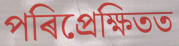
পৰিপ্ৰেক্ষিতত